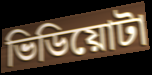
ভিডিয়োটা